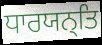
ਧਾਰਯਨ੍ਤਿ